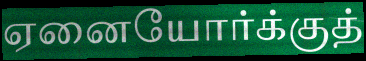
ஏனையோர்க்குத்